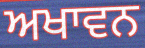
ਅਖਾਵਨ